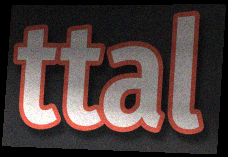
ttal